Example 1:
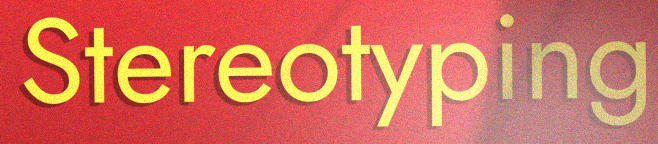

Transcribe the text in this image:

Stereotyping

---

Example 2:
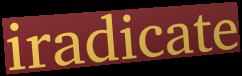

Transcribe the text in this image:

iradicate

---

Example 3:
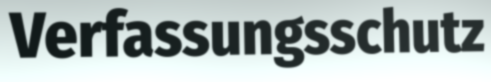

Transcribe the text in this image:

Verfassungsschutz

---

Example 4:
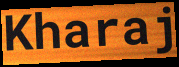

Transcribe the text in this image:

Kharaj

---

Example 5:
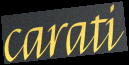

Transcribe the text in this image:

carati